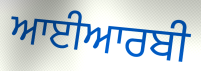
ਆਈਆਰਬੀ